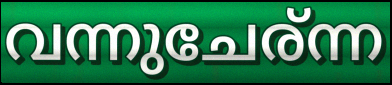
വന്നുചേര്ന്ന